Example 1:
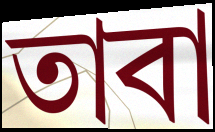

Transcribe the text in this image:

তাবা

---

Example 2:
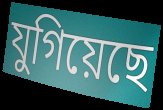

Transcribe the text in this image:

যুগিয়েছে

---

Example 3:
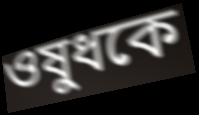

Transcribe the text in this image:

ওষুধকে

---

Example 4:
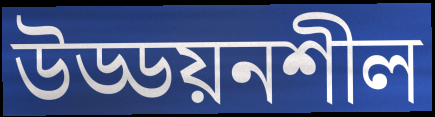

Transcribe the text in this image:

উড্ডয়নশীল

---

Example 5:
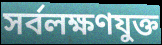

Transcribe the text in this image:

সর্বলক্ষণযুক্ত